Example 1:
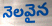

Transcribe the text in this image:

నెలవైన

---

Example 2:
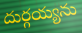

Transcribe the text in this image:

దుర్గయ్యను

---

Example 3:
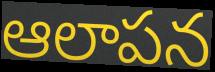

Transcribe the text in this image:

ఆలాపన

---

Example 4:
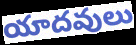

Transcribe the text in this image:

యాదవులు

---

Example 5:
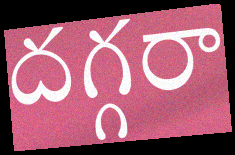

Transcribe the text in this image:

దగ్గరా